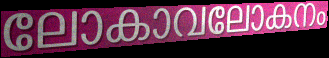
ലോകാവലോകനം